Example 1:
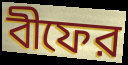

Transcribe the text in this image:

বীফের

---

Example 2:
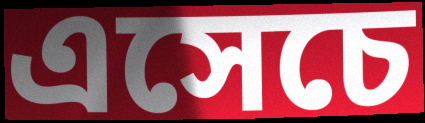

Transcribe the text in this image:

এসেচে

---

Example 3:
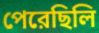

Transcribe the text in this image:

পেরেছিলি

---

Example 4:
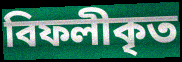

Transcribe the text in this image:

বিফলীকৃত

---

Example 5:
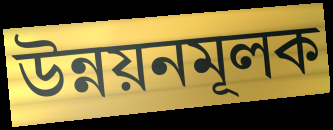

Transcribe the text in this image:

উন্নয়নমূলক